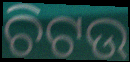
ଚିଟଉ